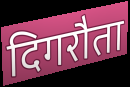
दिगरौता